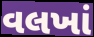
વલખાં